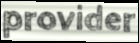
provider